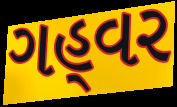
ગહ્‌વર